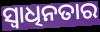
ସ୍ୱାଧିନତାର